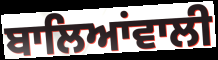
ਬਾਲਿਆਂਵਾਲੀ